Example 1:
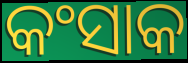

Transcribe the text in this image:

କଂସାକ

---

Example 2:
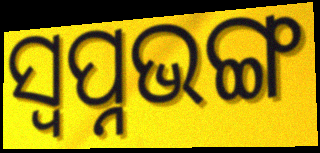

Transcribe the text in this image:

ସ୍ୱପ୍ନଭଙ୍ଗ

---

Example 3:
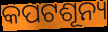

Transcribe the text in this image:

କପଟଶୂନ୍ୟ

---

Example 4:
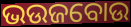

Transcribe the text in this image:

ଭଉଜବୋଉ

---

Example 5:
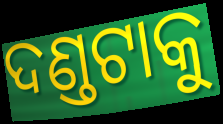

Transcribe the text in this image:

ଦଣ୍ଡଟାକୁ